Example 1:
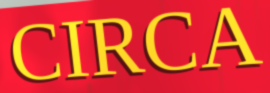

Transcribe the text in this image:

CIRCA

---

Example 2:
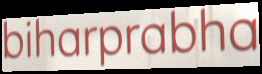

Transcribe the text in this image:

biharprabha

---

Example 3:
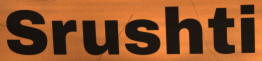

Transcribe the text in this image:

Srushti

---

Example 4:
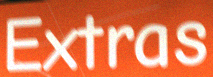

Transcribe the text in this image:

Extras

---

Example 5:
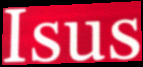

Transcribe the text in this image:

Isus